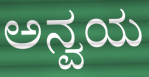
ಅನ್ವಯ